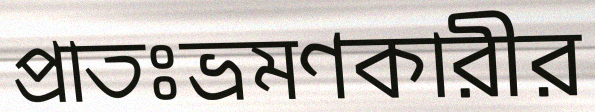
প্রাতঃভ্রমণকারীর